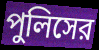
পুলিসের